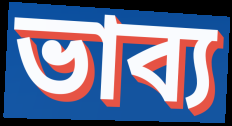
ভাব্য